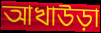
আখাউড়া